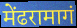
मेंढरामागं